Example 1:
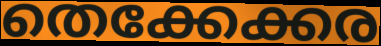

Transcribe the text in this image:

തെക്കേക്കര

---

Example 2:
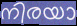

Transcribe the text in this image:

നിരയാ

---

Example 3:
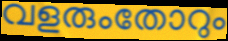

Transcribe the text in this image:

വളരുംതോറും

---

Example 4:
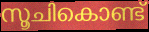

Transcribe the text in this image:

സൂചികൊണ്ട്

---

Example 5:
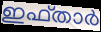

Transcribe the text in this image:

ഇഫ്താർ